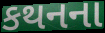
કથનના